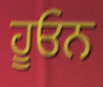
ਹੂਓਨ